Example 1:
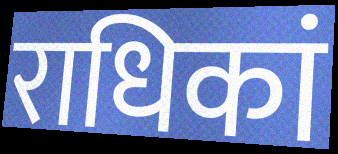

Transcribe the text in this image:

राधिकां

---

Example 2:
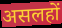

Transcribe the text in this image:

असलहों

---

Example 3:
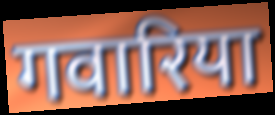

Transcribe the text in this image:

गवारिया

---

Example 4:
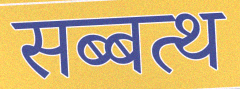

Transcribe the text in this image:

सब्बत्थ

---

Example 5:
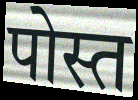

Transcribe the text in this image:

पोस्त